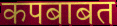
कपबाबत